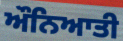
ਔਨਿਆਤੀ